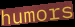
humors